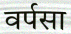
वर्पसा